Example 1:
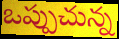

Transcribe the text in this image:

ఒప్పుచున్న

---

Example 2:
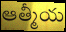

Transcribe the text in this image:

ఆత్మీయ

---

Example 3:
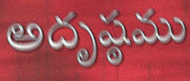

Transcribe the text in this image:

అదృష్ఠము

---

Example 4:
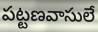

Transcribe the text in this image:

పట్టణవాసులే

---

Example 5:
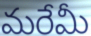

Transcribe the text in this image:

మరేమీ